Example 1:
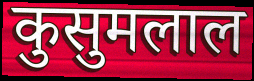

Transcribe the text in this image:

कुसुमलाल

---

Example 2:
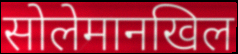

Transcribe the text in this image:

सोलेमानखिल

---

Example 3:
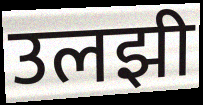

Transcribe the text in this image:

उलझी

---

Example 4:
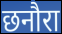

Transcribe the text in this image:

छनौरा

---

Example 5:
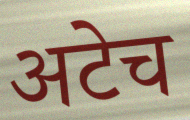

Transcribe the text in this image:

अटेच